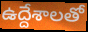
ఉద్దేశాలతో